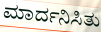
ಮಾರ್ದನಿಸಿತು